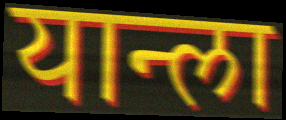
यान्ला